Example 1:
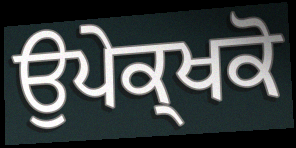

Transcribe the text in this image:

ਉਪੇਕ੍ਖਕੋ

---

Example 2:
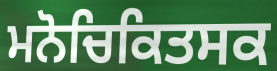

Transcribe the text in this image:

ਮਨੋਚਿਕਿਤਸਕ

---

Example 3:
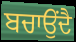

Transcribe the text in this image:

ਬਚਾਉਂਦੈ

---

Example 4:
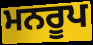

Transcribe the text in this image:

ਮਨਰੂਪ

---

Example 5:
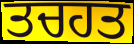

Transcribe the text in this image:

ਤਚਹਤ